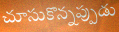
చూసుకొన్నప్పుడు